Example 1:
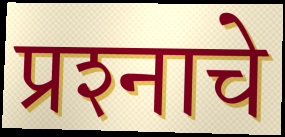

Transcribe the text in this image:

प्रश्नाचे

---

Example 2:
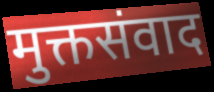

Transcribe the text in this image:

मुक्तसंवाद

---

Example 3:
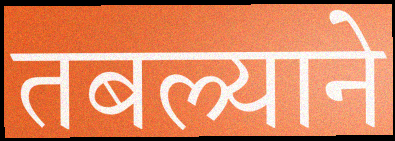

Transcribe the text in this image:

तबल्याने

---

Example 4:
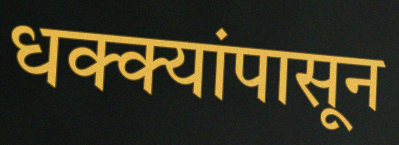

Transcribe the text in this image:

धक्क्यांपासून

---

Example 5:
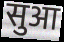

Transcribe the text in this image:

सुआ